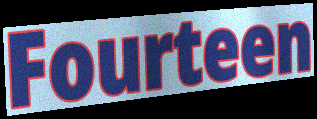
Fourteen